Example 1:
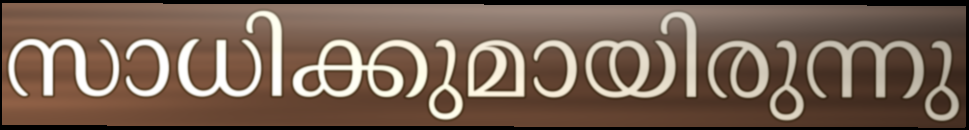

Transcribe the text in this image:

സാധിക്കുമായിരുന്നു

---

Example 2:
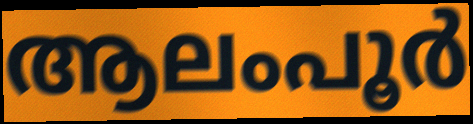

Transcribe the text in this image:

ആലംപൂർ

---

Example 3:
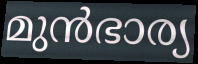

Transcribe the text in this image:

മുൻഭാര്യ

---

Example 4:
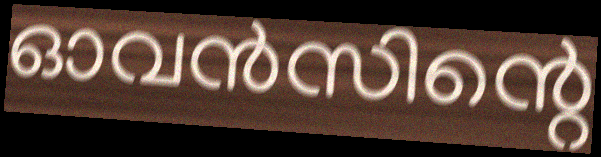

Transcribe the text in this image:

ഓവൻസിന്റെ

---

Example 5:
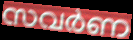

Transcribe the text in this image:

സവർണ